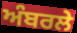
ਅੰਬਰਲੇ